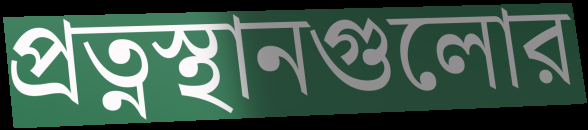
প্রত্নস্থানগুলোর